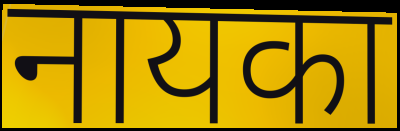
नायका